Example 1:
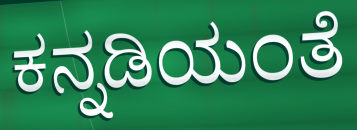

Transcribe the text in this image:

ಕನ್ನಡಿಯಂತೆ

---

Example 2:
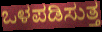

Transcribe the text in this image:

ಒಳಪಡಿಸುತ್ತ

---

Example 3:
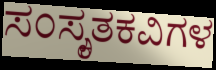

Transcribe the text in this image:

ಸಂಸ್ಕೃತಕವಿಗಳ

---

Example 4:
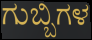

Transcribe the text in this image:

ಗುಬ್ಬಿಗಳ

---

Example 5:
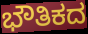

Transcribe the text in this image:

ಭೌತಿಕದ